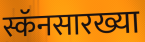
स्कॅनसारख्या